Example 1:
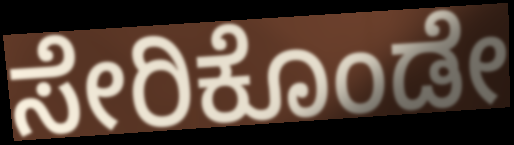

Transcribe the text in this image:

ಸೇರಿಕೊಂಡೇ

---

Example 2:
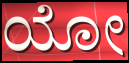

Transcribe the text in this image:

ಯೋ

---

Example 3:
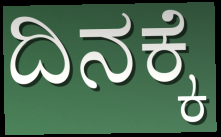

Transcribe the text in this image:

ದಿನಕ್ಕೆ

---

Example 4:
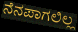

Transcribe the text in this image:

ನೆನಪಾಗಲಿಲ್ಲ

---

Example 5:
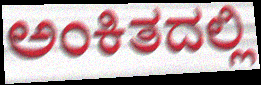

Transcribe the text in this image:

ಅಂಕಿತದಲ್ಲಿ